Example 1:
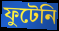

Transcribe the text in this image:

ফুটেনি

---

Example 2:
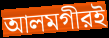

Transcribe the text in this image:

আলমগীরই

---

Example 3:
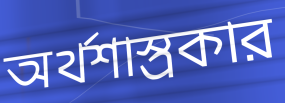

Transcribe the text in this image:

অর্থশাস্ত্রকার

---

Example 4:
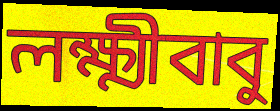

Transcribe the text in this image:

লক্ষ্মীবাবু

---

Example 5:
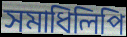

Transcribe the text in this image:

সমাধিলিপি